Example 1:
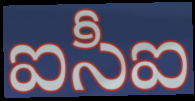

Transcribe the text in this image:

ఐసీఐ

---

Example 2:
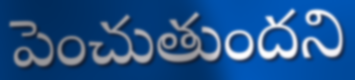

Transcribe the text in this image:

పెంచుతుందని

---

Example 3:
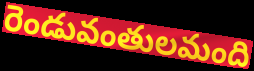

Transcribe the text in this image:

రెండువంతులమంది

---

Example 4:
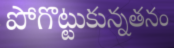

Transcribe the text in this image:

పోగొట్టుకున్నతనం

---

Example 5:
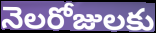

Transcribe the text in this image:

నెలరోజులకు